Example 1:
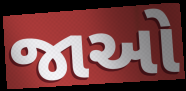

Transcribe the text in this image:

જાઓ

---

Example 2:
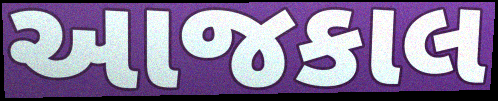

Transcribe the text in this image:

આજકાલ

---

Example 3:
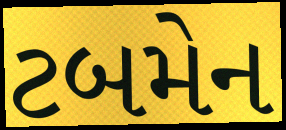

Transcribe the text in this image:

ટબમેન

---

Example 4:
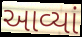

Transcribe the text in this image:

આવ્યાં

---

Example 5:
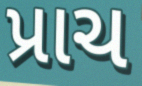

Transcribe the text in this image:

પ્રાચ